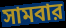
সামবার